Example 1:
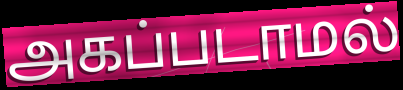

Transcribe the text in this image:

அகப்படாமல்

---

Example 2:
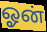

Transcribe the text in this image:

ஓன்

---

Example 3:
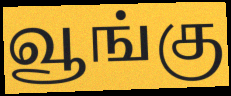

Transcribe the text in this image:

வூங்கு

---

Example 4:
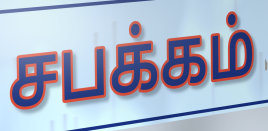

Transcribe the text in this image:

சபக்கம்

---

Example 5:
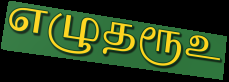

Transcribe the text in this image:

எழுதரூஉ